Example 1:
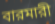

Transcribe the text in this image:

বারমারী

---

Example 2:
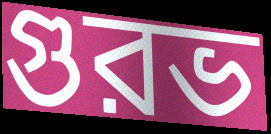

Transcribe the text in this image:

গুরভ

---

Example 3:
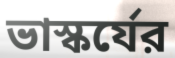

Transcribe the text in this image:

ভাস্কর্যের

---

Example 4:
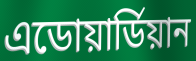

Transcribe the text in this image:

এডোয়ার্ডিয়ান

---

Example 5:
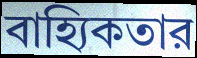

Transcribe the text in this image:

বাহ্যিকতার